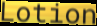
Lotion